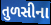
તુળસીના